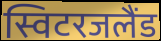
स्विटरजलैंड